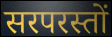
सरपरस्तों